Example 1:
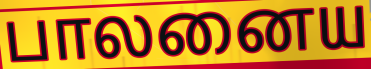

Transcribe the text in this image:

பாலனைய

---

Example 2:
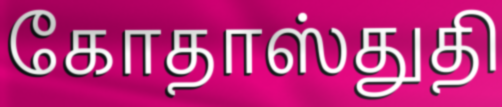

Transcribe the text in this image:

கோதாஸ்துதி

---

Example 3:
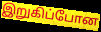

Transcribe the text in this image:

இறுகிப்போன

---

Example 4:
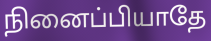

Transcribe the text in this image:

நினைப்பியாதே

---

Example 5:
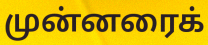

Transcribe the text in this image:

முன்னரைக்